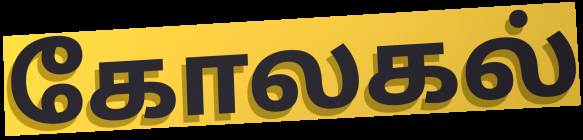
கோலகல்